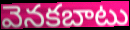
వెనకబాటు